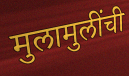
मुलामुलींची